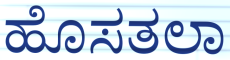
ಹೊಸತಲಾ